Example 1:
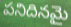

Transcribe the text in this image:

పనిదినమై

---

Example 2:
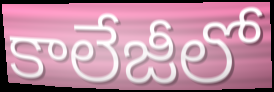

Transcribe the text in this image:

కాలేజీలో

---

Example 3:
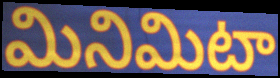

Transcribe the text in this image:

మినిమిటా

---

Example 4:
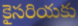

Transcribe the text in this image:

కైసరియకు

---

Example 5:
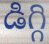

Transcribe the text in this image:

డిగ్గి